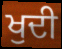
ਖੁਦੀ